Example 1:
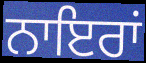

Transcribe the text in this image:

ਨਾਇਰਾਂ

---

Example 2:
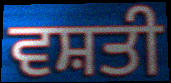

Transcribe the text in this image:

ਵਸ਼ਤੀ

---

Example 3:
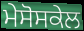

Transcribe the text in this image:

ਮੇਸੋਸਕੇਲ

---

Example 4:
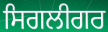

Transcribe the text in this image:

ਸਿਗਲੀਗਰ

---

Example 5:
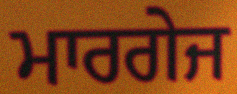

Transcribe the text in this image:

ਮਾਰਗੇਜ